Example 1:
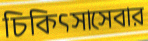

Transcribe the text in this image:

চিকিৎসাসেবার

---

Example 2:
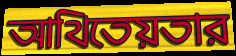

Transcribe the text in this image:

আথিতেয়তার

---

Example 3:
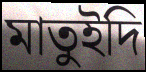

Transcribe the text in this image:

মাতুইদি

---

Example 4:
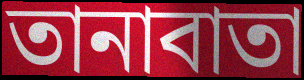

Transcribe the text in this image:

তানাবাতা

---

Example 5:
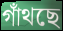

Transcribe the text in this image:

গাঁথছে